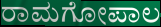
ರಾಮಗೋಪಾಲ